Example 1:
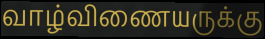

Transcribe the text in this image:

வாழ்விணையருக்கு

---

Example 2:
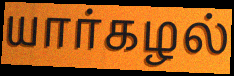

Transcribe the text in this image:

யார்கழல்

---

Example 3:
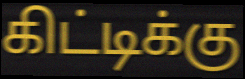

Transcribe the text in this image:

கிட்டிக்கு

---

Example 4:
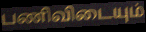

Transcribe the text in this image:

பணிவிடையும்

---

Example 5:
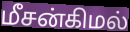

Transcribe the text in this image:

மீசன்கிமல்